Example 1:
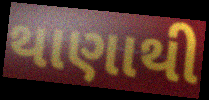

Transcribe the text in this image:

થાણાથી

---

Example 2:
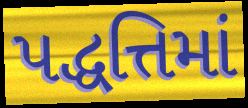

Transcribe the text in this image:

પદ્ધત્તિમાં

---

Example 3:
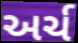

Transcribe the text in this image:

અર્ચ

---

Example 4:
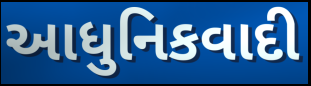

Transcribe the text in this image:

આધુનિકવાદી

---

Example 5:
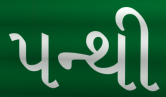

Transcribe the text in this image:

પન્થી